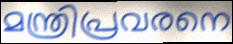
മന്ത്രിപ്രവരനെ